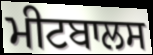
ਮੀਟਬਾਲਸ